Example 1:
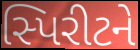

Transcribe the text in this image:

સ્પિરીટને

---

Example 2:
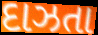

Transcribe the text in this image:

દાઝતા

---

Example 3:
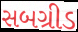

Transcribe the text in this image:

સબગ્રીડ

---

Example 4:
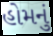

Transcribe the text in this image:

હોમનું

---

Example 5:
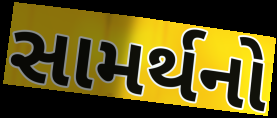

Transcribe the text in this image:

સામર્થનો